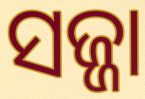
ସଜ୍ଜା